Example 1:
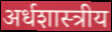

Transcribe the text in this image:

अर्धशास्त्रीय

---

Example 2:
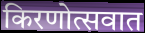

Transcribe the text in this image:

किरणोत्सवात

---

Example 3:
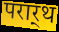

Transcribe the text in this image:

परार्थ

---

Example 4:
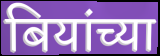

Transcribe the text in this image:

बियांच्या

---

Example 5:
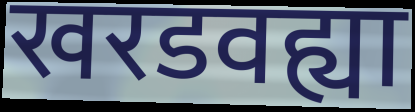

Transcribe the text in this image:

खरडवह्या